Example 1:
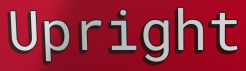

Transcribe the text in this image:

Upright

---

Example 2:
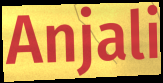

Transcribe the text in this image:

Anjali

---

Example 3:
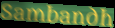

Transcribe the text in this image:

Sambandh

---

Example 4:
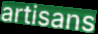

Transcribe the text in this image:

artisans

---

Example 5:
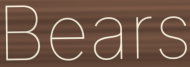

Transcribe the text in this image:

Bears